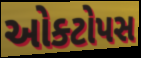
ઓક્ટોપસ